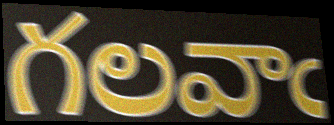
గలవాఁ